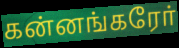
கன்னங்கரேர்